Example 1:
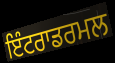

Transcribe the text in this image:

ਇੰਟਰਾਡਰਮਲ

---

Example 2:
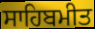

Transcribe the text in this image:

ਸਾਹਿਬਮੀਤ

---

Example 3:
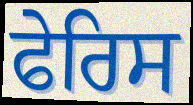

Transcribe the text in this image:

ਫੇਰਿਸ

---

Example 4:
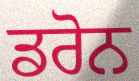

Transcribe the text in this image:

ਡਰੋਨ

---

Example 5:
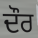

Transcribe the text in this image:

ਦੌਰ